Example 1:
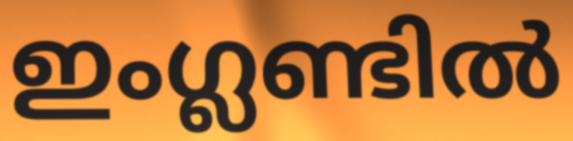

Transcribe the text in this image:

ഇംഗ്ലണ്ടിൽ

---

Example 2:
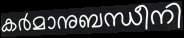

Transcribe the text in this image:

കർമാനുബന്ധീനി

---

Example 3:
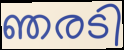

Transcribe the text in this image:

ഞരടി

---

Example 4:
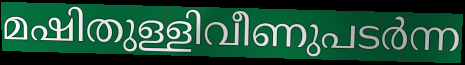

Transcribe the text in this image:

മഷിതുള്ളിവീണുപടർന്ന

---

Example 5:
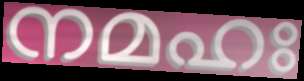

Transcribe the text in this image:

നമഹഃ